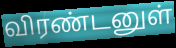
விரண்டனுள்